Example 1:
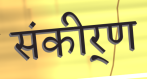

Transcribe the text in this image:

संकीर्ण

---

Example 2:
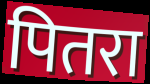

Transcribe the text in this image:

पितरा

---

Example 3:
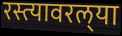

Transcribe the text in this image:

रस्त्यावरल्या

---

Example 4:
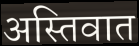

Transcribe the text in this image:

अस्तिवात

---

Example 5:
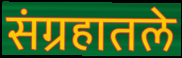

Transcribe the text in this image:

संग्रहातले